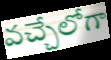
వచ్చేలోగా